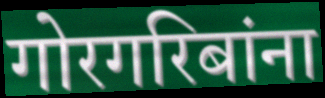
गोरगरिबांना